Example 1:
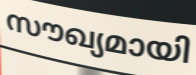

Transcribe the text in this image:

സൗഖ്യമായി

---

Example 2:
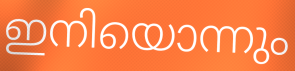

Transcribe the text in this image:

ഇനിയൊന്നും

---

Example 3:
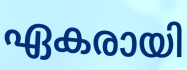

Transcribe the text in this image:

ഏകരായി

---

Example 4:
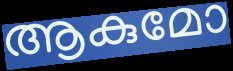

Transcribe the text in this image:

ആകുമോ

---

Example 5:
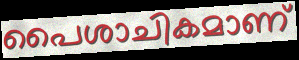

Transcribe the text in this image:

പൈശാചികമാണ്